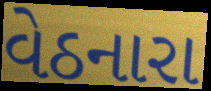
વેઠનારા